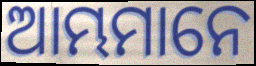
ଆମ୍ଭମାନେ